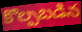
కొల్పబడిన